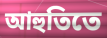
আহুতিতে